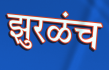
झुरळंच